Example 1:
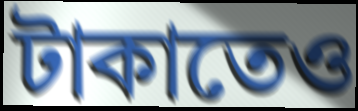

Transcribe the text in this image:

টাকাতেও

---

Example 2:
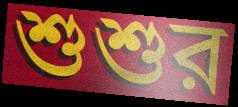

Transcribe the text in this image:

শুশুর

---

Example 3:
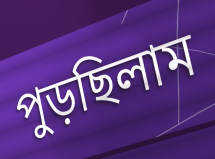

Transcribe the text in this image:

পুড়ছিলাম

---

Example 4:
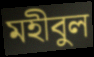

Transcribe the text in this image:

মহীবুল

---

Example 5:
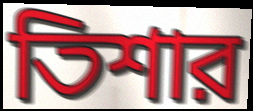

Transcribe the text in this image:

তিশার